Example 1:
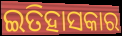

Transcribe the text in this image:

ଇତିହାସକାର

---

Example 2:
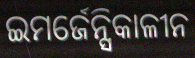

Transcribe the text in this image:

ଇମର୍ଜେନ୍ସିକାଳୀନ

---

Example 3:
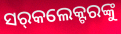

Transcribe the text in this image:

ସର୍‌କଲେକ୍ଟରଙ୍କୁ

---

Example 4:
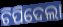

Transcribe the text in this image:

ଚିପିଦେଲା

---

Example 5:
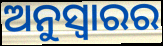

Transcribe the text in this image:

ଅନୁସ୍ଵାରର